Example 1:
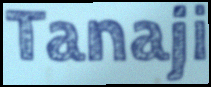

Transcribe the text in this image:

Tanaji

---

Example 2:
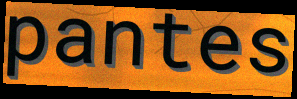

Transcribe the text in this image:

pantes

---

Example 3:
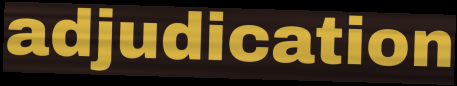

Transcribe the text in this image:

adjudication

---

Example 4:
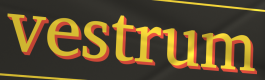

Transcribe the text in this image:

vestrum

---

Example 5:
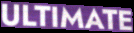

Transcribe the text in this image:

ULTIMATE